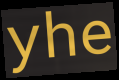
yhe